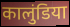
कालुंडिया